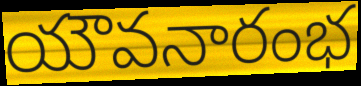
యౌవనారంభ